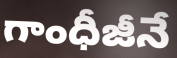
గాంధీజీనే